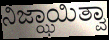
ನಿಜ್ಝಾಯಿತ್ವಾ